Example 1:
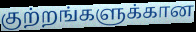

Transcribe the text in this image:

குற்றங்களுக்கான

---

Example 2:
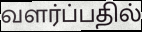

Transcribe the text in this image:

வளர்ப்பதில்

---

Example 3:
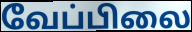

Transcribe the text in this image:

வேப்பிலை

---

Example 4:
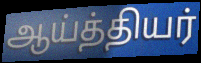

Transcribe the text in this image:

ஆய்த்தியர்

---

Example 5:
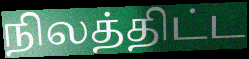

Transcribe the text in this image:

நிலத்திட்ட